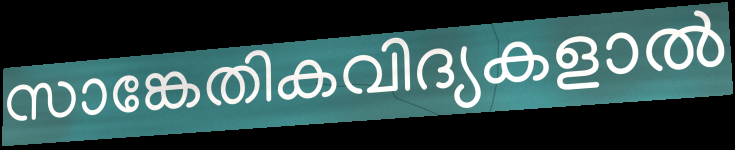
സാങ്കേതികവിദ്യകളാൽ